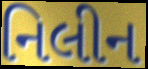
નિલીન